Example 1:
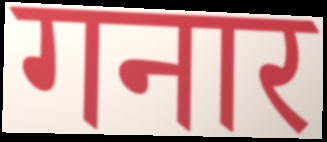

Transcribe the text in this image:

गनार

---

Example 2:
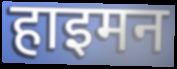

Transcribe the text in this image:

हाइमन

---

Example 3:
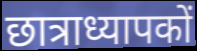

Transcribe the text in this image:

छात्राध्यापकों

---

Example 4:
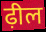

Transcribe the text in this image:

ढ़ील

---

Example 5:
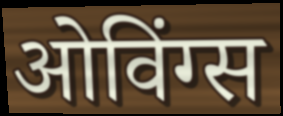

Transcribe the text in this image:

ओविंग्स